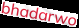
bhadarwo